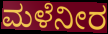
ಮಳೆನೀರ